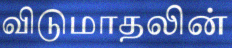
விடுமாதலின்